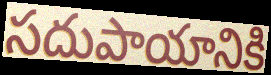
సదుపాయానికి